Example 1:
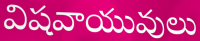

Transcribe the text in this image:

విషవాయువులు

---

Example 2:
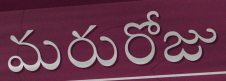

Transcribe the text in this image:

మరురోజు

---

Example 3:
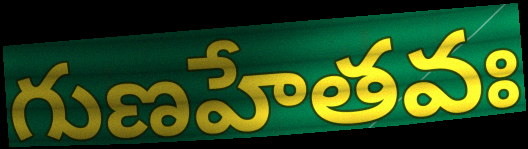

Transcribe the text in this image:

గుణహేతవః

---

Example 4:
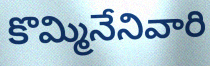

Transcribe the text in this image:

కొమ్మినేనివారి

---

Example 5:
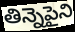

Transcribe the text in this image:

తిన్నెపైని